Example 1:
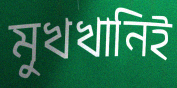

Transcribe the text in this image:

মুখখানিই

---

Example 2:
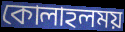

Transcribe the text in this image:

কোলাহলময়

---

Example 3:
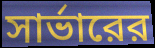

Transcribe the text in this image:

সার্ভারের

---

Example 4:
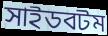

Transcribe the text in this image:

সাইডবটম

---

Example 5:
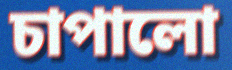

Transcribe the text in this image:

চাপালো